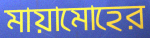
মায়ামোহের